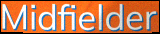
Midfielder